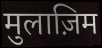
मुलाज़िम